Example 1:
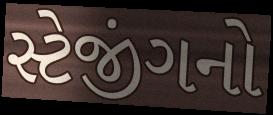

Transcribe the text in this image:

સ્ટેજીંગનો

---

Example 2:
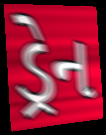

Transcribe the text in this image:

ડ્રેન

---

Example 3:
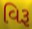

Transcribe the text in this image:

વિરૂ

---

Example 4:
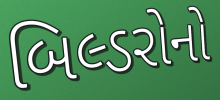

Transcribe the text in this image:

બિલ્ડરોનો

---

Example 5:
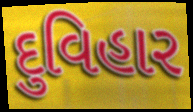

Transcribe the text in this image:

દુવિહાર